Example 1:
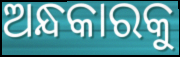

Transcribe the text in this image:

ଅନ୍ଧକାରକୁ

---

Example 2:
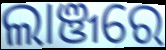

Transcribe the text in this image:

ଲାଞ୍ଜରେ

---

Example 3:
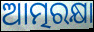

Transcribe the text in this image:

ଆତ୍ମରକ୍ଷା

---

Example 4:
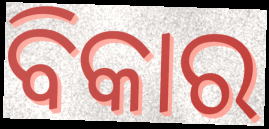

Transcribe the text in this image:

ବିକାର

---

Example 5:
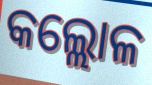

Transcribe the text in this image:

କଲ୍ଲୋଳ